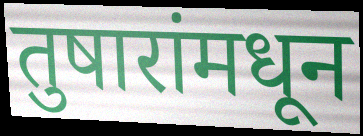
तुषारांमधून